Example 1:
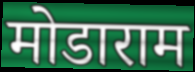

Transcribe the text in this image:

मोडाराम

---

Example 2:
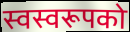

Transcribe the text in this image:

स्वस्वरूपको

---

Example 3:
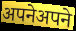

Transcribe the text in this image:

अपनेअपने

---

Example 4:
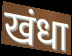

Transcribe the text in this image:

खंधा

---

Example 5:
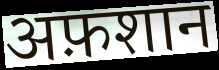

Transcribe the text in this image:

अफ़शान